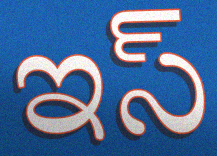
ఇస్